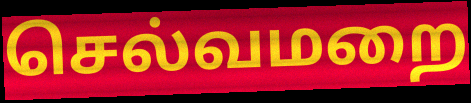
செல்வமறை